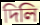
দিলি